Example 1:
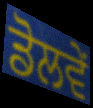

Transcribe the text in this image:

ਡੋਲਵੇਂ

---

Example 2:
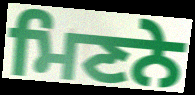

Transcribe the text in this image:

ਮਿਣਨੇ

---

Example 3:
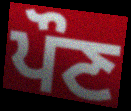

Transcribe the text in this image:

ਪੌਣ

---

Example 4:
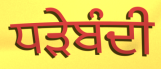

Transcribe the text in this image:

ਧੜੇਬੰਦੀ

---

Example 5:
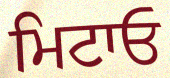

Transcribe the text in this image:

ਮਿਟਾਓ